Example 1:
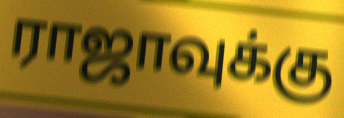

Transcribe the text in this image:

ராஜாவுக்கு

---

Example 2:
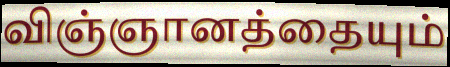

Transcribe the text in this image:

விஞ்ஞானத்தையும்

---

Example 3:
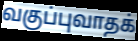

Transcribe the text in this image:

வகுப்புவாதக்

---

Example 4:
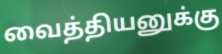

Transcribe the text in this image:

வைத்தியனுக்கு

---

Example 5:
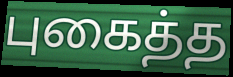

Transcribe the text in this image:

புகைத்த